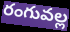
రంగువల్ల